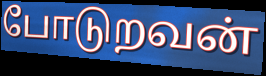
போடுறவன்